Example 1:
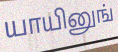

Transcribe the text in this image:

யாயினுங்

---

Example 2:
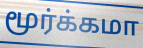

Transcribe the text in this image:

மூர்க்கமா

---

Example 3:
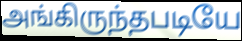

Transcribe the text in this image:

அங்கிருந்தபடியே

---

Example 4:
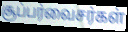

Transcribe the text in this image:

சூப்பர்வைசர்கள்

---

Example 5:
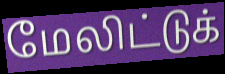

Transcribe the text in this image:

மேலிட்டுக்